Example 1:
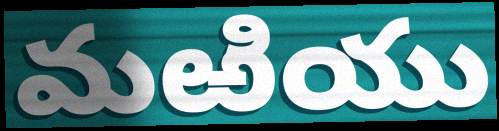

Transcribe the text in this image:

మఱియు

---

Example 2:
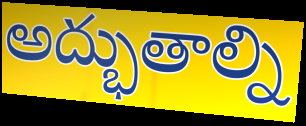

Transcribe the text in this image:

అద్భుతాల్ని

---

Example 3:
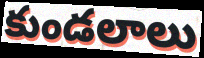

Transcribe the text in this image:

కుండలాలు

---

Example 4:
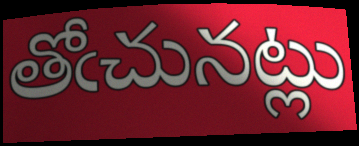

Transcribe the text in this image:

తోఁచునట్లు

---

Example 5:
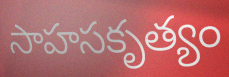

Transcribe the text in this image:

సాహసకృత్యం